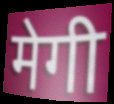
मेगी